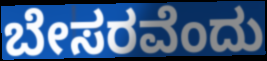
ಬೇಸರವೆಂದು